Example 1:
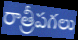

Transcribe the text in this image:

రాత్రీపగలు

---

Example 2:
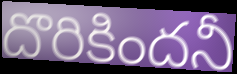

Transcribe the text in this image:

దొరికిందనీ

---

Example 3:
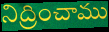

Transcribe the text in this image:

నిద్రించాము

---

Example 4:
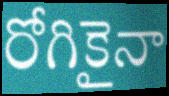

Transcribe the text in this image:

రోగికైనా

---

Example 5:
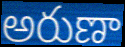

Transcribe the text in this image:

అరుణా